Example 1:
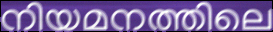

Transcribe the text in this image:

നിയമനത്തിലെ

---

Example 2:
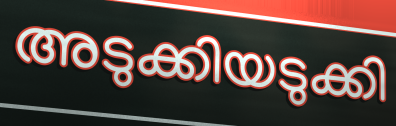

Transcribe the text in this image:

അടുക്കിയടുക്കി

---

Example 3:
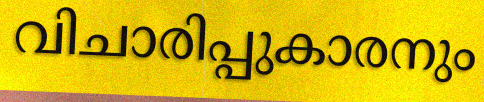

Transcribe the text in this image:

വിചാരിപ്പുകാരനും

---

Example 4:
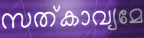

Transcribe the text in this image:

സത്കാവ്യമേ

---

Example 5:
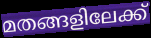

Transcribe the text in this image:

മതങ്ങളിലേക്ക്